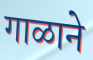
गाळाने